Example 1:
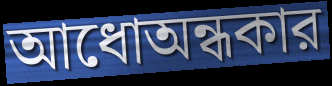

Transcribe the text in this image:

আধোঅন্ধকার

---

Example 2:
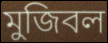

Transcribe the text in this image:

মুজিবল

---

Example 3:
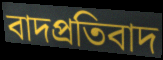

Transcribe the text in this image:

বাদপ্রতিবাদ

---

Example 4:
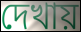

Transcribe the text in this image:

দেখায়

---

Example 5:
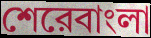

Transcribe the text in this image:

শেরেবাংলা